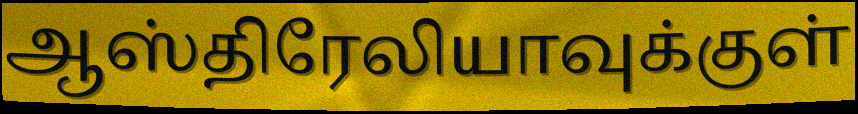
ஆஸ்திரேலியாவுக்குள்